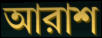
আরাশ